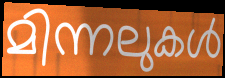
മിന്നലുകൾ